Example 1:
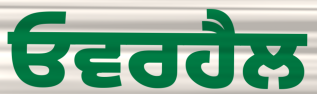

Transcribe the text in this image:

ਓਵਰਹੈਲ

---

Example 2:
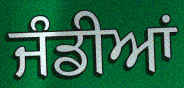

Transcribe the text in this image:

ਜੰਡੀਆਂ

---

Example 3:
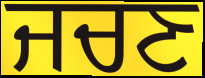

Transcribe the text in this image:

ਜਚਣ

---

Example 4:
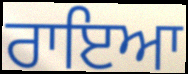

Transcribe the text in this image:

ਰਾਇਆ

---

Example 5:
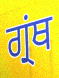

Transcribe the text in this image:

ਗ੍ਰਂਥ